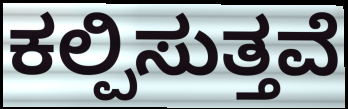
ಕಲ್ಪಿಸುತ್ತವೆ